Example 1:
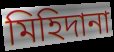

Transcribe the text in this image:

মিহিদানা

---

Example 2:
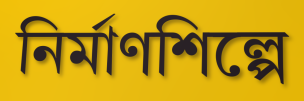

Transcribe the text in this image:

নির্মাণশিল্পে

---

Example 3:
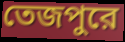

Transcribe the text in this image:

তেজপুরে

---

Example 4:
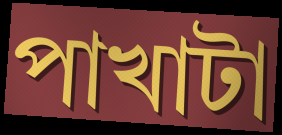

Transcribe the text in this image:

পাখাটা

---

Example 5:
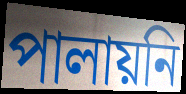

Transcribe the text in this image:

পালায়নি